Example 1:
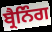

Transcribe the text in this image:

ਬ੍ਰੈਨਿੰਗ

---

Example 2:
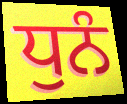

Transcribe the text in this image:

ਧੁਨੰ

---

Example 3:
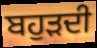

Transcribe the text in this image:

ਬਹੁੜਦੀ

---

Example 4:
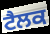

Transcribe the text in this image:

ਟੈਲਕ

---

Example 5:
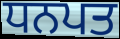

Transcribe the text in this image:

ਧਨਪਤ